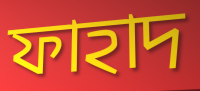
ফাহাদ